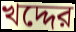
খদ্দের